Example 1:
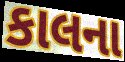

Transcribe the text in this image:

કાલના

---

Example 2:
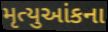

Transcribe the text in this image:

મૃત્યુઆંકના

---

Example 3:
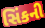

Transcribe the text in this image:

સિંકની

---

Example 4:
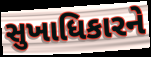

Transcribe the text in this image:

સુખાધિકારને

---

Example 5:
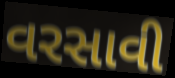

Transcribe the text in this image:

વરસાવી